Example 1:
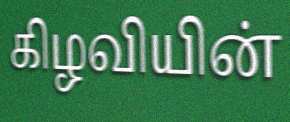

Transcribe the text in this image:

கிழவியின்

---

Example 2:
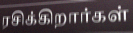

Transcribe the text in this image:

ரசிக்கிறார்கள்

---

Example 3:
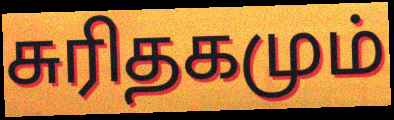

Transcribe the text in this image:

சுரிதகமும்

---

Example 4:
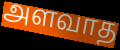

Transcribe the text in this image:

அளவாத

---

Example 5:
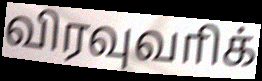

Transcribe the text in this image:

விரவுவரிக்